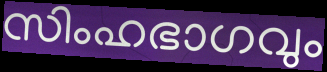
സിംഹഭാഗവും